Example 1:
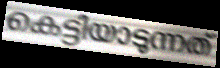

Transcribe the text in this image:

കെട്ടിയാടുന്നത്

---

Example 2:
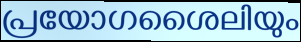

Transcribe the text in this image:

പ്രയോഗശൈലിയും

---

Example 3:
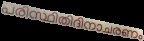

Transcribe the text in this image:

പരിസ്ഥിതിദിനാചരണം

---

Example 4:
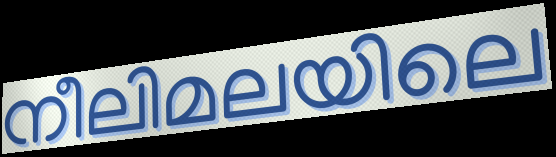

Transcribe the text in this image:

നീലിമലയിലെ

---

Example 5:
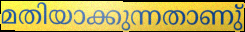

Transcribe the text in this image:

മതിയാക്കുന്നതാണു്